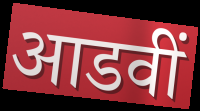
आडवीं